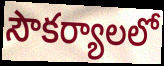
సౌకర్యాలలో